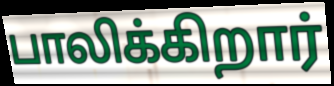
பாலிக்கிறார்